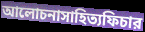
আলোচনাসাহিত্যফিচার